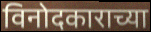
विनोदकाराच्या